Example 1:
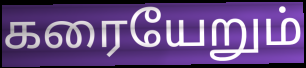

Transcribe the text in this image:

கரையேறும்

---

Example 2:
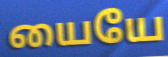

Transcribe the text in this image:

யையே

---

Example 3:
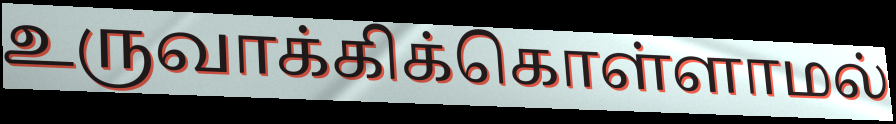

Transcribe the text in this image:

உருவாக்கிக்கொள்ளாமல்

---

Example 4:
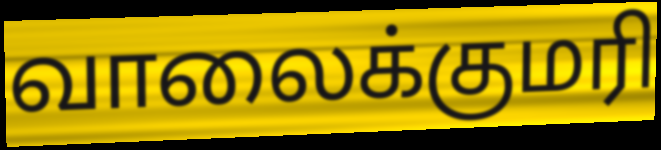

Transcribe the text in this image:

வாலைக்குமரி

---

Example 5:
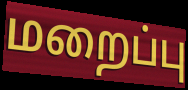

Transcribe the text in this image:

மறைப்பு